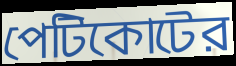
পেটিকোটের